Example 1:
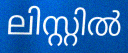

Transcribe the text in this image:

ലിസ്റ്റിൽ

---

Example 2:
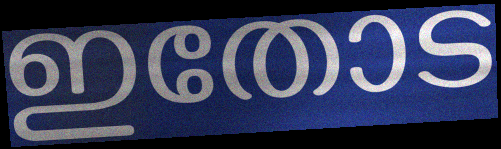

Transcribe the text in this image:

ഇതോട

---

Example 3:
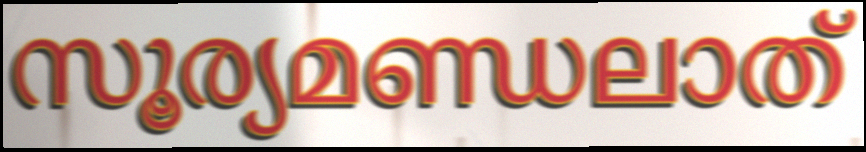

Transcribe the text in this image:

സൂര്യമണ്ഡലാത്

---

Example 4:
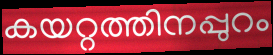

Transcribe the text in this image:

കയറ്റത്തിനപ്പുറം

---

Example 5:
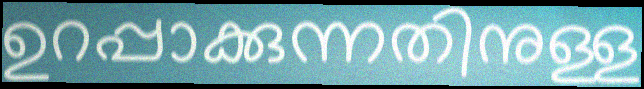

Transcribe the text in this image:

ഉറപ്പാക്കുന്നതിനുള്ള